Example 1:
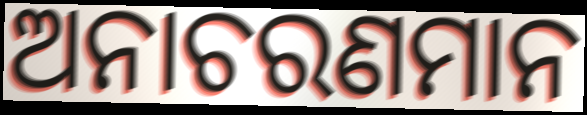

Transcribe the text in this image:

ଅନାଚରଣମାନ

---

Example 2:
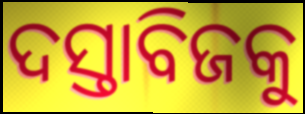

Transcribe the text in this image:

ଦସ୍ତାବିଜକୁ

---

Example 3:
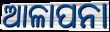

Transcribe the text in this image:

ଆଳାପନା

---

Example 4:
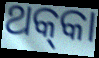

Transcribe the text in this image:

ଥକ୍‍କା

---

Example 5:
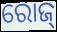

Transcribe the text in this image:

ରୋଜ୍